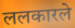
ललकारले